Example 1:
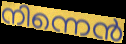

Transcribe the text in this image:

നിന്നെൻ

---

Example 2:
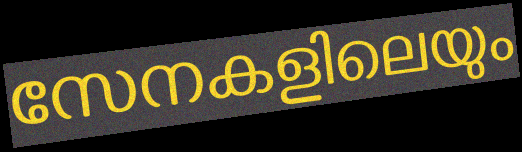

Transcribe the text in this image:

സേനകളിലെയും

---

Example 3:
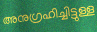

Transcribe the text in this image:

അനുഗ്രഹിച്ചിട്ടുള്ള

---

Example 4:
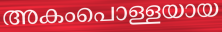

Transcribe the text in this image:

അകംപൊള്ളയായ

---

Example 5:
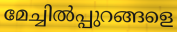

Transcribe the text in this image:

മേച്ചിൽപ്പുറങ്ങളെ